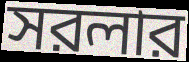
সরলার